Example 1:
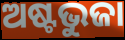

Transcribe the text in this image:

ଅଷ୍ଟଭୁଜା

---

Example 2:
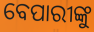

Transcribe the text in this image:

ବେପାରୀଙ୍କୁ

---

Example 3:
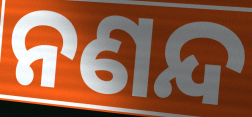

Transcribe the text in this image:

ନଣନ୍ଦ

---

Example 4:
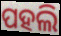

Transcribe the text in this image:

ପହଲି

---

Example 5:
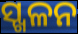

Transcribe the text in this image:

ସ୍ଖଳନ